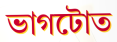
ভাগটোত